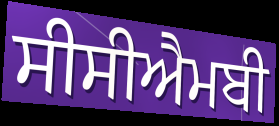
ਸੀਸੀਐਮਬੀ